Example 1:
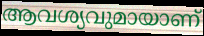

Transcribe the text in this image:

ആവശ്യവുമായാണ്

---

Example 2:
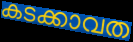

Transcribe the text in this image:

കടക്കാവത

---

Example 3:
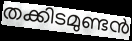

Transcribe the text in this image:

തക്കിടമുണ്ടൻ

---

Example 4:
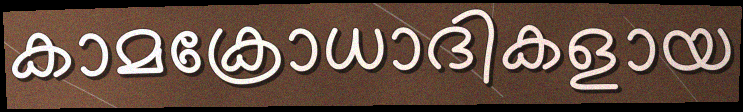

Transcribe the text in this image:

കാമക്രോധാദികളായ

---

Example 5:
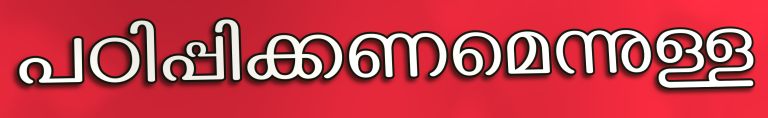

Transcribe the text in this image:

പഠിപ്പിക്കണമെന്നുള്ള